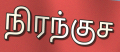
நிரந்குச